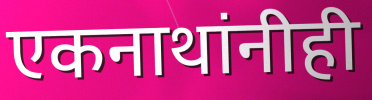
एकनाथांनीही